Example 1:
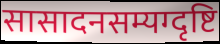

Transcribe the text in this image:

सासादनसम्यग्दृष्टि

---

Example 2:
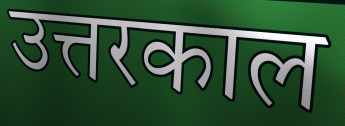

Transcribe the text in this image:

उत्तरकाल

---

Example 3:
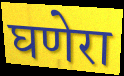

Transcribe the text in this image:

घणेरा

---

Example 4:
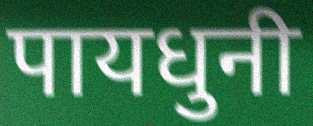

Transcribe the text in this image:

पायधुनी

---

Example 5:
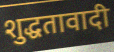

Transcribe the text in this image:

शुद्धतावादी